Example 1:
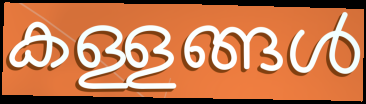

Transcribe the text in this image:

കള്ളങ്ങൾ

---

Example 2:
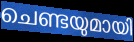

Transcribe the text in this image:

ചെണ്ടയുമായി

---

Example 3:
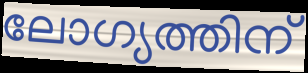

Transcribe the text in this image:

ലോഗ്യത്തിന്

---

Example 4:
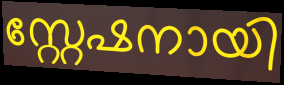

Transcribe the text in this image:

സ്റ്റേഷനായി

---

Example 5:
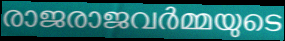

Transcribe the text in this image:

രാജരാജവർമ്മയുടെ